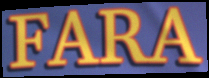
FARA